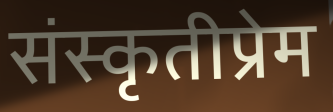
संस्कृतीप्रेम